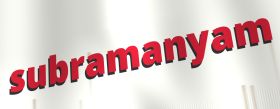
subramanyam